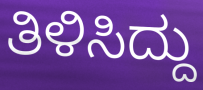
ತಿಳಿಸಿದ್ದು